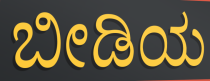
ಬೀಡಿಯ